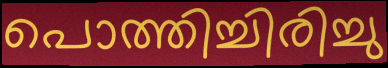
പൊത്തിച്ചിരിച്ചു